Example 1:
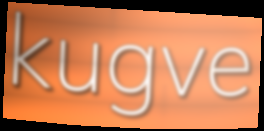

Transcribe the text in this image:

kugve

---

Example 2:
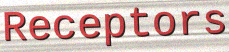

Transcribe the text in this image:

Receptors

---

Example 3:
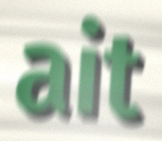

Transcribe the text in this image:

ait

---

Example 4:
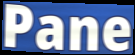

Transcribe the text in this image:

Pane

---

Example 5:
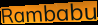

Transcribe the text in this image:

Rambabu